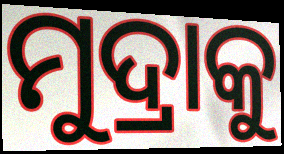
ମୁଦ୍ରାକୁ